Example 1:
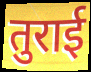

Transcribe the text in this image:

तुराई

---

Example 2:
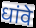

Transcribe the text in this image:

धांवे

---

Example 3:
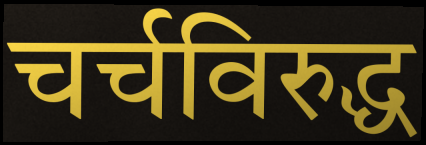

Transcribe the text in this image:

चर्चविरुद्ध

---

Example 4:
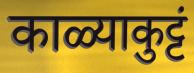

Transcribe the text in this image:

काळ्याकुट्टं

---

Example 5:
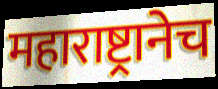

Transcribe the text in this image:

महाराष्ट्रानेच